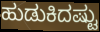
ಹುಡುಕಿದಷ್ಟು